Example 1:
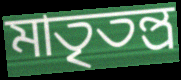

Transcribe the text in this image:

মাতৃতন্ত্র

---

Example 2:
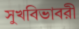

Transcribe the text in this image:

সুখবিভাবরী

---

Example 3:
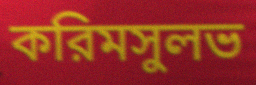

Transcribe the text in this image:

করিমসুলভ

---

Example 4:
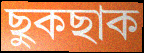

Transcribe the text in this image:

ছুকছাক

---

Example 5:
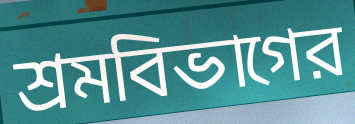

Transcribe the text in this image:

শ্রমবিভাগের